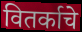
वितर्काचे